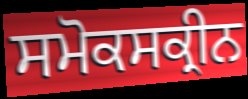
ਸਮੋਕਸਕ੍ਰੀਨ